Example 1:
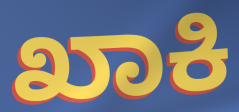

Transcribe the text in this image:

ಖಾಕಿ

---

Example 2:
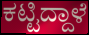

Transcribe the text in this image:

ಕಟ್ಟಿದ್ದಾಳೆ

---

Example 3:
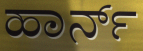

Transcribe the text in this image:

ಹಾರ್ನ್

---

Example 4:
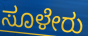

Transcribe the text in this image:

ಸೂಳೇರು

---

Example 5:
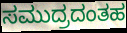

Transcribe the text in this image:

ಸಮುದ್ರದಂತಹ